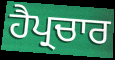
ਹੈਪ੍ਰਚਾਰ